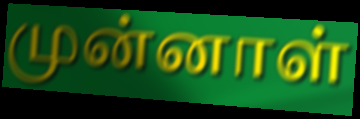
முன்னாள்